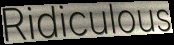
Ridiculous